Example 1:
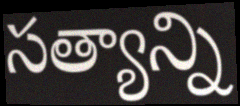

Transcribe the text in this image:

సత్యాన్ని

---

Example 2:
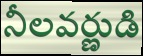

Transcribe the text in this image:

నీలవర్ణుడి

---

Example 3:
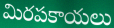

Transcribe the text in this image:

మిరపకాయలు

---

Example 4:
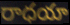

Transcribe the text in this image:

రాధయా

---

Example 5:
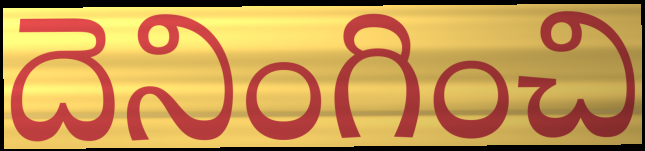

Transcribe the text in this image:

దెనింగించి